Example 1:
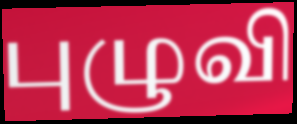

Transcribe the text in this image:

புழுவி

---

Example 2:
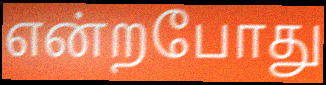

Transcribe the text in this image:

என்றபோது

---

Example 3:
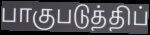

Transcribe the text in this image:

பாகுபடுத்திப்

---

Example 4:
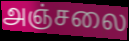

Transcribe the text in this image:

அஞ்சலை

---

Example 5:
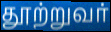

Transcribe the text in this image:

தூற்றுவர்